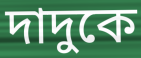
দাদুকে